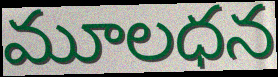
మూలధన